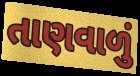
તાણવાળું